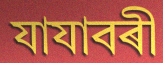
যাযাবৰী